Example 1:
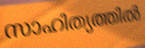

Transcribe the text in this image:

സാഹിത്യത്തിൽ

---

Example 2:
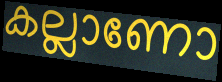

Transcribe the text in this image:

കല്ലാണോ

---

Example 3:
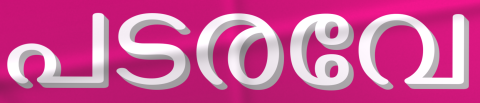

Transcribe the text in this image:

പടരവേ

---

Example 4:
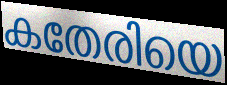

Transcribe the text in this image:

കതേരിയെ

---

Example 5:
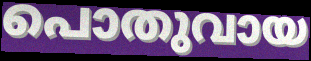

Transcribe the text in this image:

പൊതുവായ